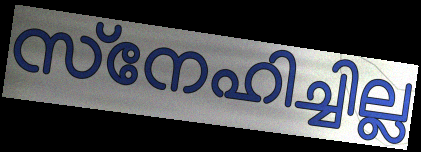
സ്‌നേഹിച്ചില്ല